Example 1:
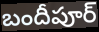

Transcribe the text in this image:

బందీపూర్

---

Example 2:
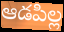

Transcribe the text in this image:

ఆడపిల్ల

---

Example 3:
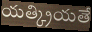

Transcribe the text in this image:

యత్క్రియతే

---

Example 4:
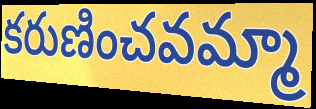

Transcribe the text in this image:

కరుణించవమ్మా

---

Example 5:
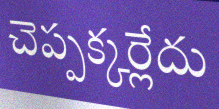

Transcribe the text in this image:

చెప్పక్కర్లేదు